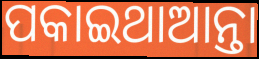
ପକାଇଥାଆନ୍ତା